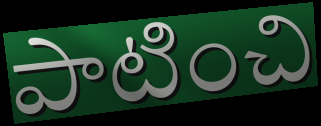
పాటించి